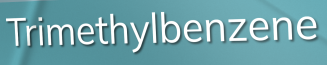
Trimethylbenzene